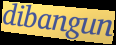
dibangun